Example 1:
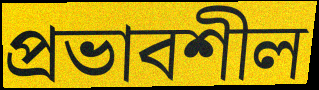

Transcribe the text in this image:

প্রভাবশীল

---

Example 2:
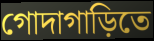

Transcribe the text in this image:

গোদাগাড়িতে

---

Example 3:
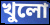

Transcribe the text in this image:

খুলো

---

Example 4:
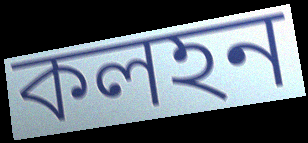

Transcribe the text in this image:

কলহন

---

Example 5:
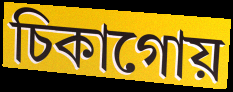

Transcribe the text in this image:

চিকাগোয়